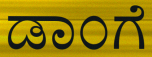
ಡಾಂಗೆ